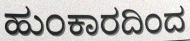
ಹುಂಕಾರದಿಂದ